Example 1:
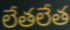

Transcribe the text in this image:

లేతలేత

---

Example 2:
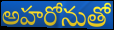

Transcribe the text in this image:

అహరోనుతో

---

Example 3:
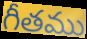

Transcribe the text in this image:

గీతము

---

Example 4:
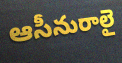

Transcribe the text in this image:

ఆసీనురాలై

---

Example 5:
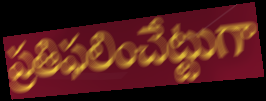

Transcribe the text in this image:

ప్రతిఫలించేట్టుగా